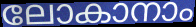
ലോകാനാം